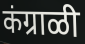
कंग्राळी